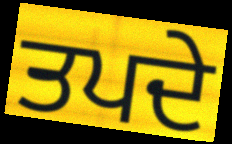
ਤਪਦੇ